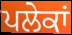
ਪਲੇਕਾਂ